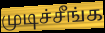
முடிச்சீங்க